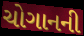
ચોગાનની